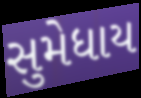
સુમેધાય